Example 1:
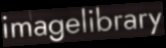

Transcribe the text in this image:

imagelibrary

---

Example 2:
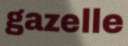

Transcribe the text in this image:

gazelle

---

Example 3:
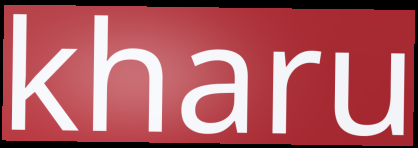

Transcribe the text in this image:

kharu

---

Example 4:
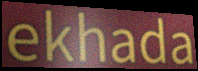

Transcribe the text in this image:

ekhada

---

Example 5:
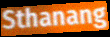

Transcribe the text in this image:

Sthanang